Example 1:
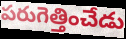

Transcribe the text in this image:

పరుగెత్తించేడు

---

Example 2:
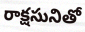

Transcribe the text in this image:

రాక్షసునితో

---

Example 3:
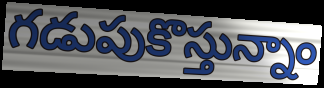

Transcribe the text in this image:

గడుపుకొస్తున్నాం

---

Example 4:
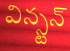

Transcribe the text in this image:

విన్స్టన్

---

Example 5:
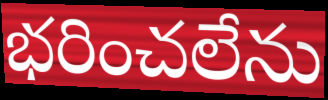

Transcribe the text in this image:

భరించలేను